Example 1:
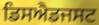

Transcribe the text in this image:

ਡਿਸਐਡਜਸਟ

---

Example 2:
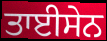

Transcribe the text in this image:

ਤਾਈਸੇਨ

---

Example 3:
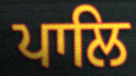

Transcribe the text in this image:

ਪਾਲਿ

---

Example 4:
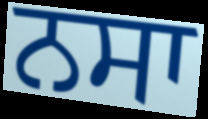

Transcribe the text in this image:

ਨਸਾ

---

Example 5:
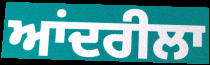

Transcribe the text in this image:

ਆਂਦਰੀਲਾ